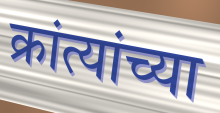
क्रांत्यांच्या